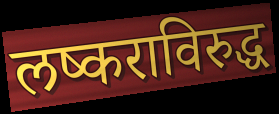
लष्कराविरुद्ध